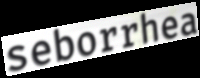
seborrhea